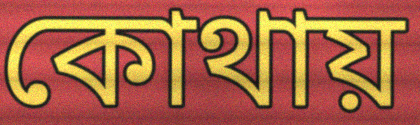
কোথায়